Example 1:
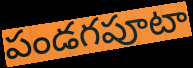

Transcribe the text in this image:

పండగపూటా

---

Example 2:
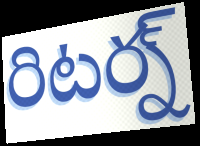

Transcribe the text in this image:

రిటర్న్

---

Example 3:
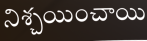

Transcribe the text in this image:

నిశ్చయించాయి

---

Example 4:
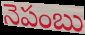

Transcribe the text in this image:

నెపంబు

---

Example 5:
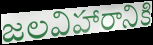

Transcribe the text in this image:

జలవిహారానికి